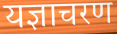
यज्ञाचरण